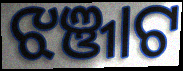
ଝଞ୍ଜାଟ